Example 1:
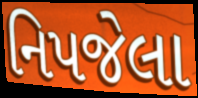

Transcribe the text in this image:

નિપજેલા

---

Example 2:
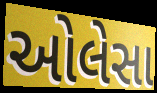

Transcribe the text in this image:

ઓલેસા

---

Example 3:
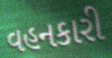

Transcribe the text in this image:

વહનકારી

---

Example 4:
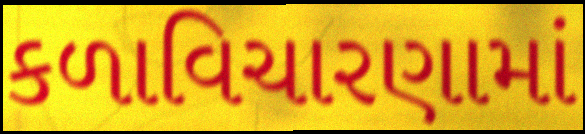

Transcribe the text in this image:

કળાવિચારણામાં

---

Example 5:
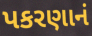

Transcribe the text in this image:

પકરણાનં